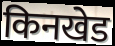
किनखेड